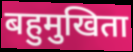
बहुमुखिता